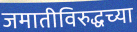
जमातीविरुद्धच्या